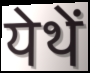
येथें